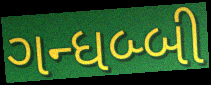
ગન્ધબ્બી